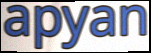
apyan